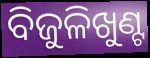
ବିଜୁଳିଖୁଣ୍ଟ